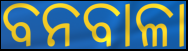
ବନବାଳା